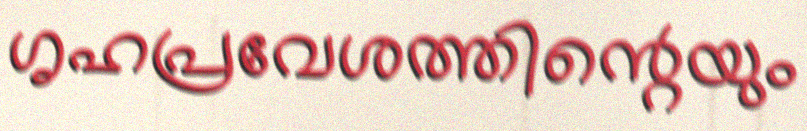
ഗൃഹപ്രവേശത്തിന്റെയും